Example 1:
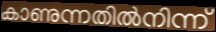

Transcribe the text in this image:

കാണുന്നതിൽനിന്ന്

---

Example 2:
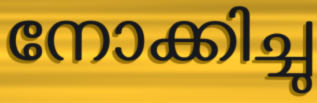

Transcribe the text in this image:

നോക്കിച്ചു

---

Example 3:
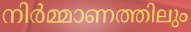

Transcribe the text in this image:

നിർമ്മാണത്തിലും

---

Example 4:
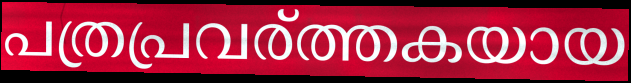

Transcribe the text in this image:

പത്രപ്രവര്ത്തകയായ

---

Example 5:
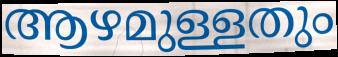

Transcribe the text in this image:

ആഴമുള്ളതും